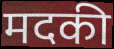
मदकी